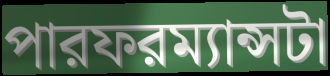
পারফরম্যান্সটা